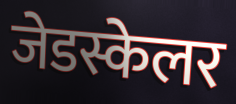
जेडस्केलर